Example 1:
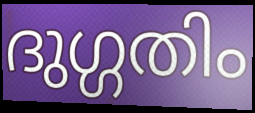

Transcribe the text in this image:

ദുഗ്ഗതിം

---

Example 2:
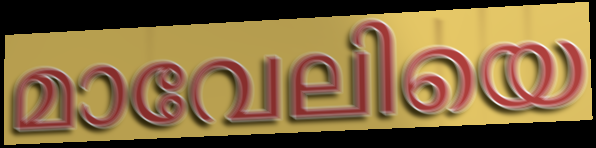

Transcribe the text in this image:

മാവേലിയെ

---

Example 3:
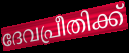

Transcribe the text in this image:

ദേവപ്രീതിക്ക്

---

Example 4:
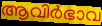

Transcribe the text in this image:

ആവിർഭാവ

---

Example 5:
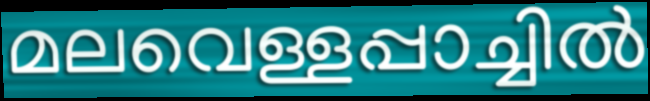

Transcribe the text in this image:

മലവെള്ളപ്പാച്ചിൽ